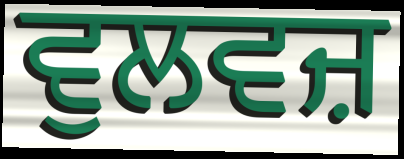
ਵੁਲਵਜ਼